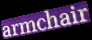
armchair